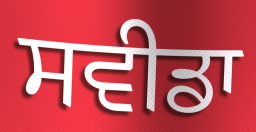
ਸਵੀਡਾ